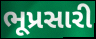
ભૂપ્રસારી